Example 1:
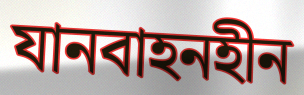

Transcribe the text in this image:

যানবাহনহীন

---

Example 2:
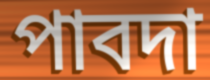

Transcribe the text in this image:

পাবদা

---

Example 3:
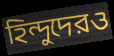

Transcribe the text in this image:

হিন্দুদেরও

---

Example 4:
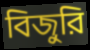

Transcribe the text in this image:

বিজুরি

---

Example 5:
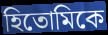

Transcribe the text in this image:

হিতোমিকে